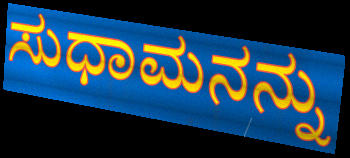
ಸುಧಾಮನನ್ನು